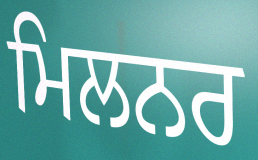
ਮਿਲਨਰ